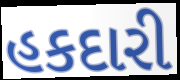
હકદારી